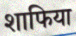
शाफिया